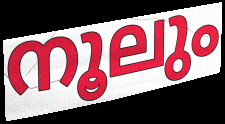
നൂലും